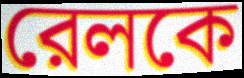
রেলকে